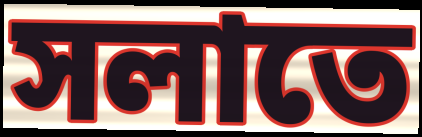
সলাতে